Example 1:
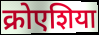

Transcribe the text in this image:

क्रोएशिया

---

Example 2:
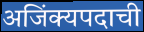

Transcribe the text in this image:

अजिंक्यपदाची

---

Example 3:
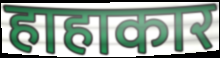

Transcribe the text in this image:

हाहाकार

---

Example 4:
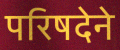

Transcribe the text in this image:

परिषदेने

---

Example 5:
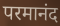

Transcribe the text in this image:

परमानंद